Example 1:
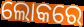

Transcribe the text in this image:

ଲୋକରେ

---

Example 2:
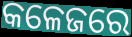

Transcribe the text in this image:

କଳେଜରେ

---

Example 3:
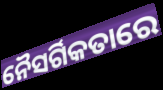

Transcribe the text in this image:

ନୈସର୍ଗିକତାରେ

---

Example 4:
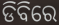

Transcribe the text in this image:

ଡିବିରେ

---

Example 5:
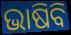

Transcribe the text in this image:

ଭାଷିବି